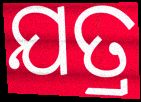
ଯତ୍ର